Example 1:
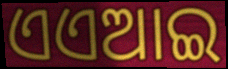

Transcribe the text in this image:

ଏଏଆଇ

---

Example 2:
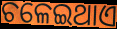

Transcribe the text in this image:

ଚଳେଇଥାଏ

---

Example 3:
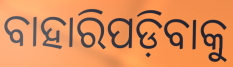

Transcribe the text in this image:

ବାହାରିପଡ଼ିବାକୁ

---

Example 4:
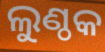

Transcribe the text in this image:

ଲୁଣ୍ଠକ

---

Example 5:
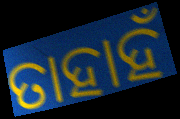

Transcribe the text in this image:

ତାହାହଁ